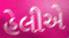
હેલીએ